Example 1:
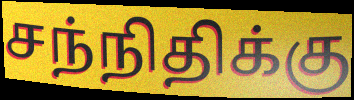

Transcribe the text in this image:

சந்நிதிக்கு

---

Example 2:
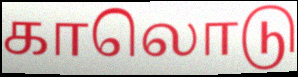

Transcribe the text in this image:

காலொடு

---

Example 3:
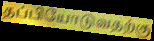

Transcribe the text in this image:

தப்பியோடுவதற்கு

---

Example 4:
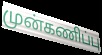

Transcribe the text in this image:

முன்கணிப்பு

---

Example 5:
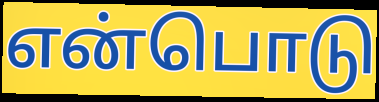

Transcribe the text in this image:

என்பொடு